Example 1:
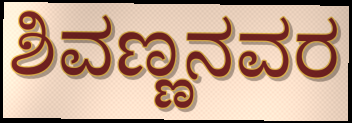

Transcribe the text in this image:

ಶಿವಣ್ಣನವರ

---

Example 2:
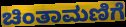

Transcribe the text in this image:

ಚಿಂತಾಮಣಿಗೆ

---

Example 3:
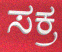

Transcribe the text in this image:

ಸಕ್ರ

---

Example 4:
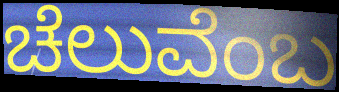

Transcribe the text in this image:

ಚೆಲುವೆಂಬ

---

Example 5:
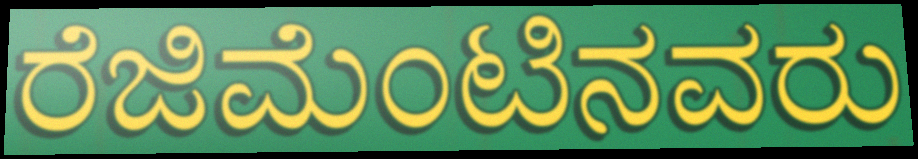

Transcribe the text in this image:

ರೆಜಿಮೆಂಟಿನವರು